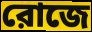
রোজে